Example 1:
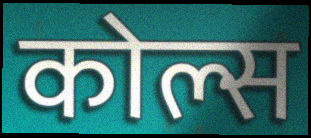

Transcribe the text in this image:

कोल्स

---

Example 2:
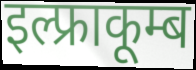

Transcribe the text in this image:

इल्फ्राकूम्ब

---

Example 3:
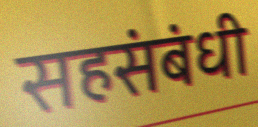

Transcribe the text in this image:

सहसंबंधी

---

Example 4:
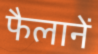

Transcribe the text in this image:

फैलानें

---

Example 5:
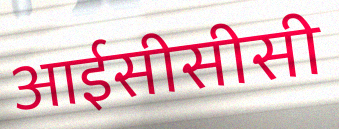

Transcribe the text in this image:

आईसीसीसी